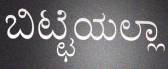
ಬಿಟ್ಟೆಯಲ್ಲಾ